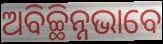
ଅବିଚ୍ଛିନ୍ନଭାବେ